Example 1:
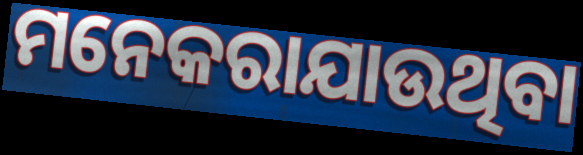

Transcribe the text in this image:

ମନେକରାଯାଉଥିବା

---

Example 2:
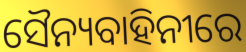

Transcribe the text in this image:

ସୈନ୍ୟବାହିନୀରେ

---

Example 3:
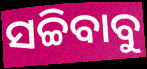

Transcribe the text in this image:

ସଚ୍ଚିବାବୁ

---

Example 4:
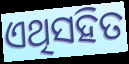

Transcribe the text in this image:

ଏଥିସହିତ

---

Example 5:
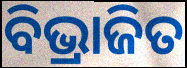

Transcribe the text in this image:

ବିଭ୍ରାଜିତ